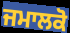
ਜਮਾਲਕੋ